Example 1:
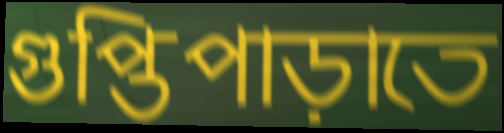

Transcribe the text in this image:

গুপ্তিপাড়াতে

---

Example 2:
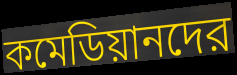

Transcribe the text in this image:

কমেডিয়ানদের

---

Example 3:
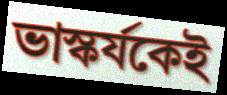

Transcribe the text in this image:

ভাস্কর্যকেই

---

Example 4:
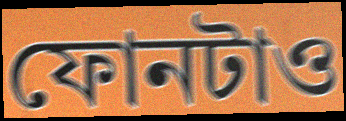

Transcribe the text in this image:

ফোনটাও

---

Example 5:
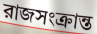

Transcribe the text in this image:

রাজসংক্রান্ত